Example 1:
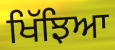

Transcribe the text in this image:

ਖਿੱਝਿਆ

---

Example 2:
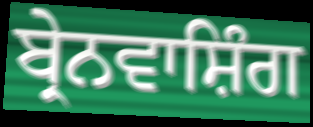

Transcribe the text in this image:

ਬ੍ਰੇਨਵਾਸ਼ਿੰਗ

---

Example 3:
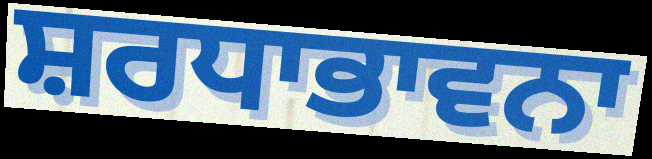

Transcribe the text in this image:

ਸ਼ਰਧਾਭਾਵਨਾ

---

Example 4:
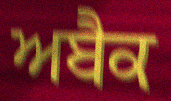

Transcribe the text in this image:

ਅਬੈਕ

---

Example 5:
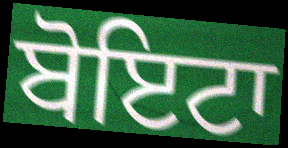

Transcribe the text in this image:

ਬੋਇਟਾ